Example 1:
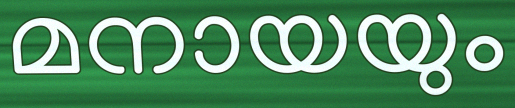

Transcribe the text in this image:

മനായയും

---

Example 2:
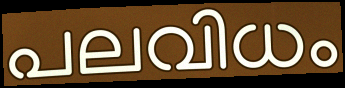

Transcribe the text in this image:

പലവിധം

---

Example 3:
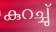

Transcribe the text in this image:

കുറച്ചു്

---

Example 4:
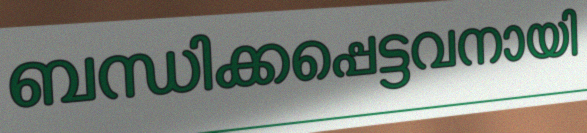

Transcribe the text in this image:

ബന്ധിക്കപ്പെട്ടവനായി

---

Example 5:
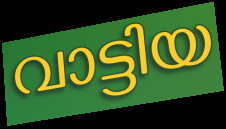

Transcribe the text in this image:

വാട്ടിയ